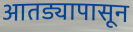
आतड्यापासून